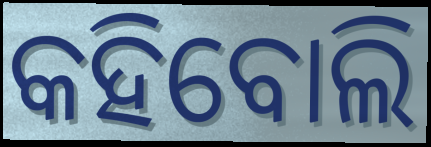
କହିବୋଲି